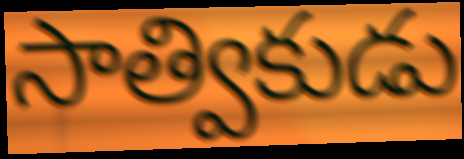
సాత్వికుడు